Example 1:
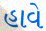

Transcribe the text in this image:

હાવે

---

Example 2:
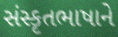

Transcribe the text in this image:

સંસ્કૃતભાષાને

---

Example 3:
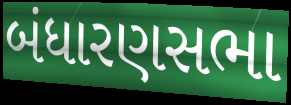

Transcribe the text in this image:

બંધારણસભા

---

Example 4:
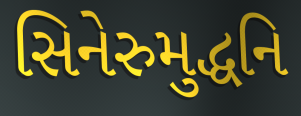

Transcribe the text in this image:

સિનેરુમુદ્ધનિ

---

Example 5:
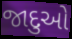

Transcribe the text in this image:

જાદુઓ